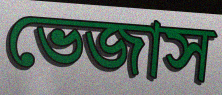
ভেজাস